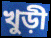
খুড়ী